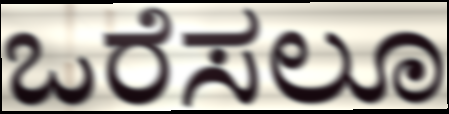
ಒರೆಸಲೂ